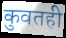
कुवतही